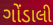
ગોંડાલી